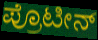
ಪ್ರೊಟೀನ್